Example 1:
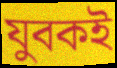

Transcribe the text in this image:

যুবকই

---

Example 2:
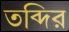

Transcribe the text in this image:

তব্দির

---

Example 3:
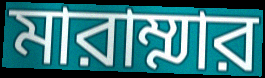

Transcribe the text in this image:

মারাম্মার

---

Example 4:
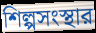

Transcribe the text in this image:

শিল্পসংস্থার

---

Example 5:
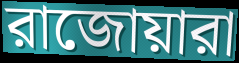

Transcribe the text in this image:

রাজোয়ারা